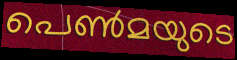
പെൺമയുടെ